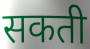
सकती